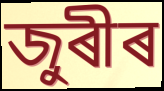
জুৰীৰ